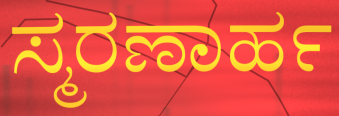
ಸ್ಮರಣಾರ್ಹ